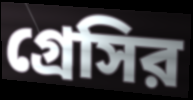
গ্রেসির